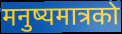
मनुष्यमात्रको